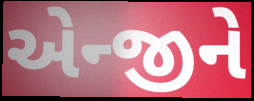
એન્જીને